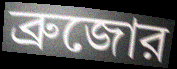
ব্রুজোর